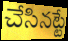
చేసినట్టే